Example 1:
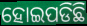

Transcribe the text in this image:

ହୋଇପଡିଛି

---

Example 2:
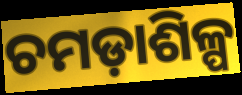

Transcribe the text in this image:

ଚମଡ଼ାଶିଳ୍ପ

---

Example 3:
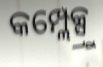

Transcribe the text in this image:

କମ୍ପ୍ଲେକ୍ସ୍ରୁ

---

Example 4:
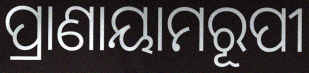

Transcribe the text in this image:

ପ୍ରାଣାୟାମରୂପୀ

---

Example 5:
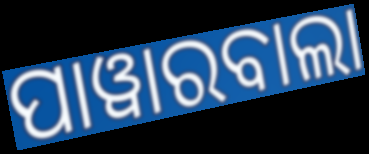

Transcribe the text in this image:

ପାୱାରବାଲା